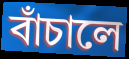
বাঁচালে